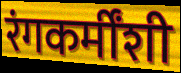
रंगकर्मींशी